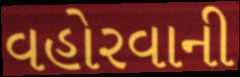
વહોરવાની